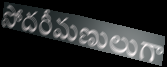
సోదరీమణులుగా